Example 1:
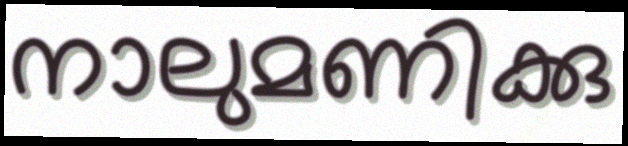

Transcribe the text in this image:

നാലുമണിക്കു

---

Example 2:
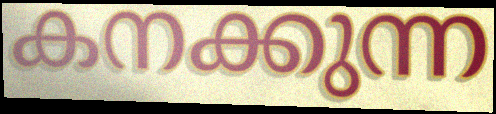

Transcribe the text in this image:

കനക്കുന്ന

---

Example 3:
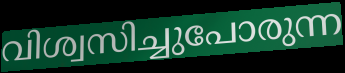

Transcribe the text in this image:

വിശ്വസിച്ചുപോരുന്ന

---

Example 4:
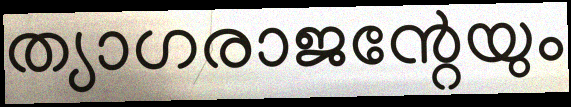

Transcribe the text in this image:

ത്യാഗരാജന്റേയും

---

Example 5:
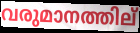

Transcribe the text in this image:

വരുമാനത്തില്